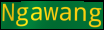
Ngawang